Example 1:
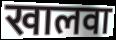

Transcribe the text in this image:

खालवा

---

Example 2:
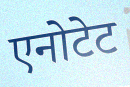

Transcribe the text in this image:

एनोटेट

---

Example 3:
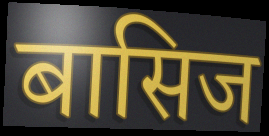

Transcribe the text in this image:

बासिज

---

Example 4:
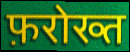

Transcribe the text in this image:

फ़रोख्त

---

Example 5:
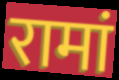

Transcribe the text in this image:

रामां